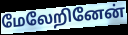
மேலேறினேன்